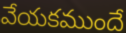
వేయకముందే